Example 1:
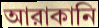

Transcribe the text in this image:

আরাকানি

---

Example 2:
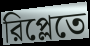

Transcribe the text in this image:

রিপ্লেতে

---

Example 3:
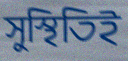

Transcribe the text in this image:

সুস্থিতিই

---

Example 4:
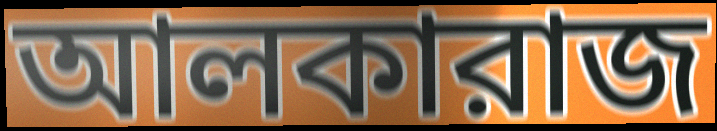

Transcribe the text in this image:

আলকারাজ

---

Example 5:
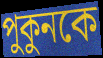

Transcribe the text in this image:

পুকুনকে